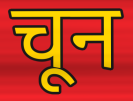
चून